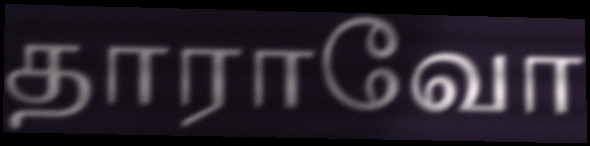
தாராவோ